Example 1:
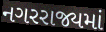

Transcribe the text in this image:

નગરરાજ્યમાં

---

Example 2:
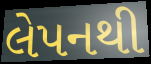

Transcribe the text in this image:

લેપનથી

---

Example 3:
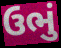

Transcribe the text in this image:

ઉભું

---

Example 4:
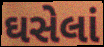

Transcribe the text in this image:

ઘસેલાં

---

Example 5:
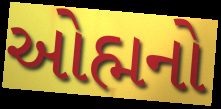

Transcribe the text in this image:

ઓહ્મનો